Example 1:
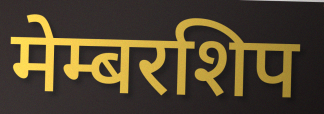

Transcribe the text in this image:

मेम्बरशिप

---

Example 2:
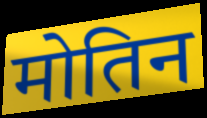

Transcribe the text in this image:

मोतिन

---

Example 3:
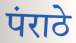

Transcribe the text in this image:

पंराठे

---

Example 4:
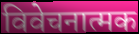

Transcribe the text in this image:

विवेचनात्मक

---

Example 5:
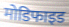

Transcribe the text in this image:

मोडिफाइड